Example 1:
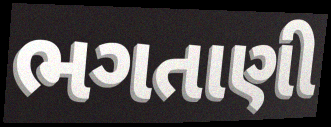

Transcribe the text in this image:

ભગતાણી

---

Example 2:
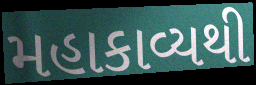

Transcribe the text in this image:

મહાકાવ્યથી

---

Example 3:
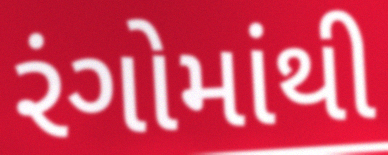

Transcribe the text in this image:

રંગોમાંથી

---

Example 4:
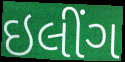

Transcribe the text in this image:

ઇલીંગ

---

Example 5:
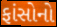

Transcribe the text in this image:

ફાંસોનો